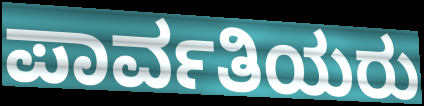
ಪಾರ್ವತಿಯರು